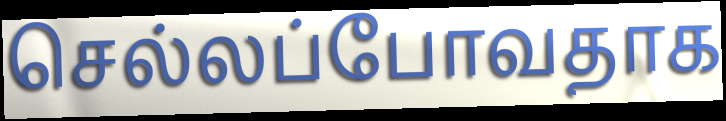
செல்லப்போவதாக